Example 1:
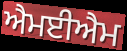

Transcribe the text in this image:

ਐਮਈਐਮ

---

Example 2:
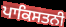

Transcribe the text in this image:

ਪਾਕਿਸਤਨੀ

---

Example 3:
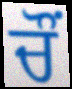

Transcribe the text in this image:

ਚੌਂ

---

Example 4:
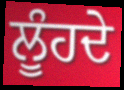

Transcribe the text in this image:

ਲੂੰਹਦੇ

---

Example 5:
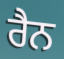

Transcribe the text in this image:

ਰੈਨ